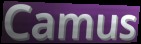
Camus